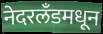
नेदरलँडमधून